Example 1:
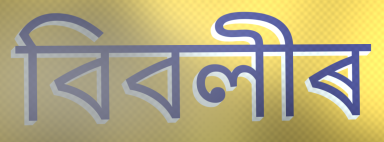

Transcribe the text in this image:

বিবলীৰ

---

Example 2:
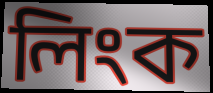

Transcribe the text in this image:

লিংক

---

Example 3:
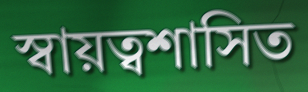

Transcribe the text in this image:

স্বায়ত্বশাসিত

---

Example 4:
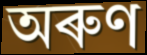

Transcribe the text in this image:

অৰুণ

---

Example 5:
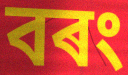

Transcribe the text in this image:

বৰং